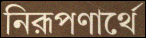
নিরূপণার্থে